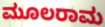
ಮೂಲರಾಮ